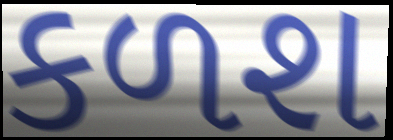
કળશ